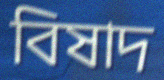
বিষাদ